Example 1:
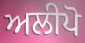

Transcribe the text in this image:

ਅਲੀਪੋ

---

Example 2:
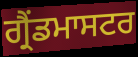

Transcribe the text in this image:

ਗ੍ਰੈਂਡਮਾਸਟਰ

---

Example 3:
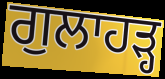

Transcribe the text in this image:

ਗੁਲਾਹੜ੍ਹ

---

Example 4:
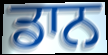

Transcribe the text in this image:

ਡਾਨ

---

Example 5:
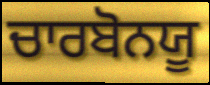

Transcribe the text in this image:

ਚਾਰਬੋਨਯੂ